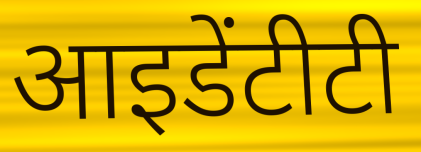
आइडेंटीटी